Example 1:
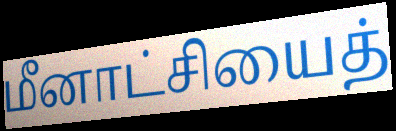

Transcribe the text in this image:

மீனாட்சியைத்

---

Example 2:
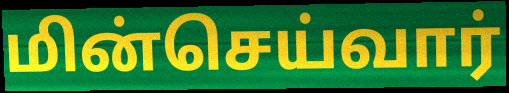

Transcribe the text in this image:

மின்செய்வார்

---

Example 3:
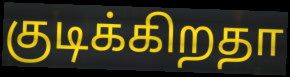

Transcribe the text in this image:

குடிக்கிறதா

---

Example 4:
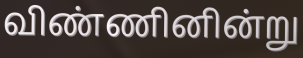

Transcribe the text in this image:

விண்ணினின்று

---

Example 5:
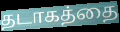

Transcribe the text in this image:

தடாகத்தை